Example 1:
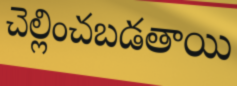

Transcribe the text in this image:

చెల్లించబడతాయి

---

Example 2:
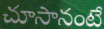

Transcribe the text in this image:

చూసానంటే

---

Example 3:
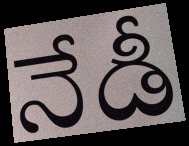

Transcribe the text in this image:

నేడీ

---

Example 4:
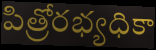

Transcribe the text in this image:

పిత్రోరభ్యధికా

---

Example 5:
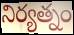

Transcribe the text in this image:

నిర్యత్నం